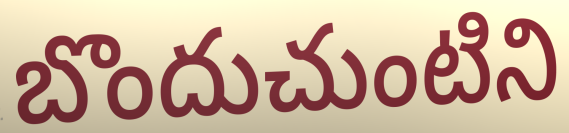
బొందుచుంటిని